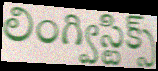
లింగ్విస్టిక్స్